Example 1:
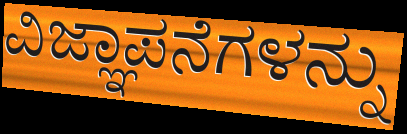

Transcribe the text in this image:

ವಿಜ್ಞಾಪನೆಗಳನ್ನು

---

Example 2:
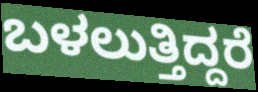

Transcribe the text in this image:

ಬಳಲುತ್ತಿದ್ದರೆ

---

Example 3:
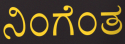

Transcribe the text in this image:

ನಿಂಗೆಂತ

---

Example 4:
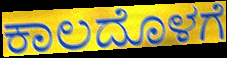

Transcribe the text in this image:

ಕಾಲದೊಳಗೆ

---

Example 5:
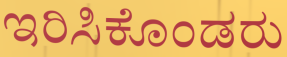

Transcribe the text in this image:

ಇರಿಸಿಕೊಂಡರು